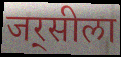
जर्सीला